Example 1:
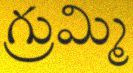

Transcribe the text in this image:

గ్రుమ్మి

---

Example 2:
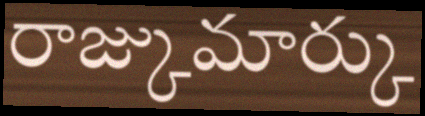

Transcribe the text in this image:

రాజ్కుమార్కు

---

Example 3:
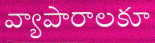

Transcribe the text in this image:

వ్యాపారాలకూ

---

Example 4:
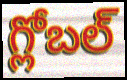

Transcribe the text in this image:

గ్లోబల్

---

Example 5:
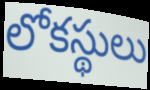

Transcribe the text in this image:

లోకస్థులు